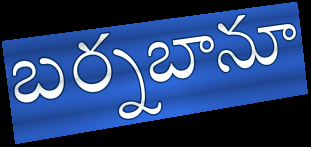
బర్నబానూ